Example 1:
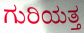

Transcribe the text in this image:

ಗುರಿಯತ್ತ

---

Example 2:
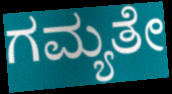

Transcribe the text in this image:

ಗಮ್ಯತೇ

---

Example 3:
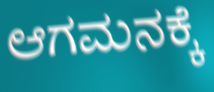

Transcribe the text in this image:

ಆಗಮನಕ್ಕೆ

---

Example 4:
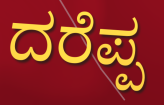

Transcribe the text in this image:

ದರೆಪ್ಪ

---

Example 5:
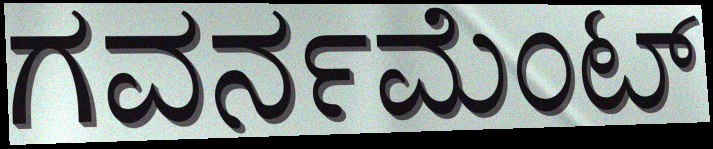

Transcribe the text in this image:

ಗವರ್ನಮೆಂಟ್